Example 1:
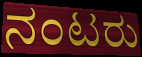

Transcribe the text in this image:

ನಂಟರು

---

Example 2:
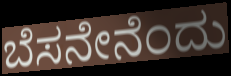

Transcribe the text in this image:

ಬೆಸನೇನೆಂದು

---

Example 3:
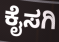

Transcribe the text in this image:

ಕೈಸಗಿ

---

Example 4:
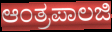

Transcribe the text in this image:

ಆಂತ್ರಪಾಲಜಿ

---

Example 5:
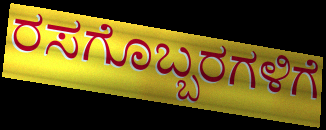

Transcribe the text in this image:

ರಸಗೊಬ್ಬರಗಳಿಗೆ